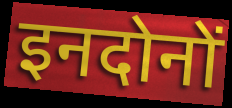
इनदोनों